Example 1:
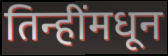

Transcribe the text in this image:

तिन्हींमधून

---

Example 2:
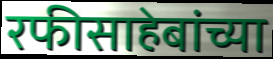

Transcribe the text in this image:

रफीसाहेबांच्या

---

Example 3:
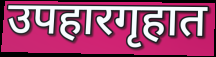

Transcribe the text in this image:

उपहारगृहात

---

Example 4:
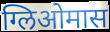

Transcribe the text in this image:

ग्लिओमास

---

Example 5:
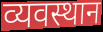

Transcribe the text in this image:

व्यवस्थान